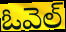
ఓవెల్